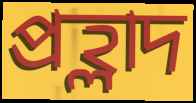
প্ৰহ্লাদ